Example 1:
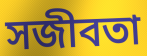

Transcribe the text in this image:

সজীবতা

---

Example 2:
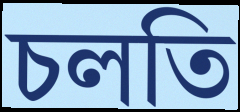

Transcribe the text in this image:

চলতি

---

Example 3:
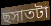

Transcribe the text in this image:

ছসাতটা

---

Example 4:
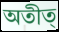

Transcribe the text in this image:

অতীত্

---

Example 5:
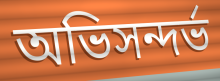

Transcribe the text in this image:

অভিসন্দর্ভ